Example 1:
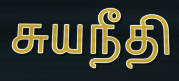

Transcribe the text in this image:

சுயநீதி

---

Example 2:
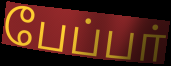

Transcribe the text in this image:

பேப்பர்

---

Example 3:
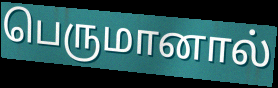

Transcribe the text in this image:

பெருமானால்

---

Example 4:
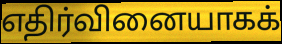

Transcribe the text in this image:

எதிர்வினையாகக்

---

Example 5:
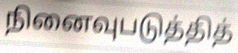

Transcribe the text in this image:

நினைவுபடுத்தித்